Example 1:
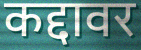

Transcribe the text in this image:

कद्दावर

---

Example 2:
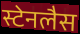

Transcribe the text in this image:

स्टेनलैस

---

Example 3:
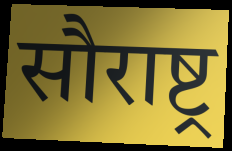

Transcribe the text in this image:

सौराष्ट्र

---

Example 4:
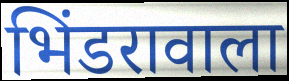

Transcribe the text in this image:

भिंडरावाला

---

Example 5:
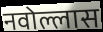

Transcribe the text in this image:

नवोल्लास